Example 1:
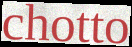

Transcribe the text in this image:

chotto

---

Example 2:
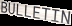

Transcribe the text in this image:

BULLETIN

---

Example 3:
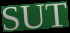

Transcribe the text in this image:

SUT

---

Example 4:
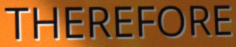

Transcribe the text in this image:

THEREFORE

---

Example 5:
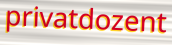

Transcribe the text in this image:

privatdozent